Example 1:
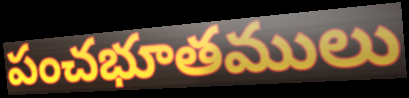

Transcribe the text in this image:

పంచభూతములు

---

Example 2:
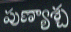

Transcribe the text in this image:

పుణ్యాశ్చ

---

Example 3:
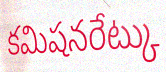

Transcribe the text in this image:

కమిషనరేట్కు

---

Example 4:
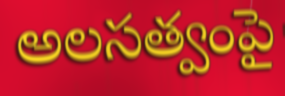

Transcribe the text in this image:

అలసత్వంపై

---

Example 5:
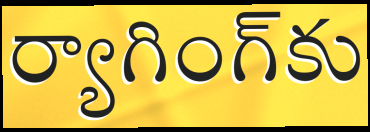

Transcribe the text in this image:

ర్యాగింగ్‌కు